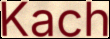
Kach